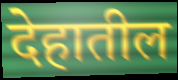
देहातील